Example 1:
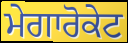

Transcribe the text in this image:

ਮੇਗਾਰੋਕੇਟ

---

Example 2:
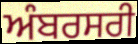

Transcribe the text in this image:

ਅੰਬਰਸਰੀ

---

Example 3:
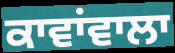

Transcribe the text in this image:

ਕਾਵਾਂਵਾਲਾ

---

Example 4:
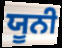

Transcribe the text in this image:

ਯੂਨੀ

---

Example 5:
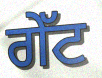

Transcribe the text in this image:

ਗੇੱਟ